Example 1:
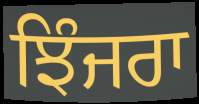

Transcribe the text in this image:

ਝਿੰਜਰਾ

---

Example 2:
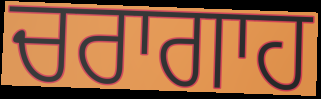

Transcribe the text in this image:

ਚਰਾਗਾਹ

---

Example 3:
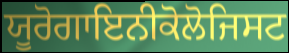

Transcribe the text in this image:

ਯੂਰੋਗਾਇਨੀਕੋਲੋਜਿਸਟ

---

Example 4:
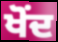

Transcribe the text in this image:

ਖੋਂਦ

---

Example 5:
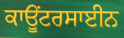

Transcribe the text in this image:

ਕਾਊਂਟਰਸਾਈਨ